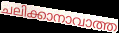
ചലിക്കാനാവാത്ത